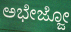
ಅಭೇಜ್ಜೋ